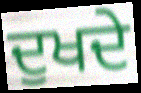
ਦੁਖਦੇ